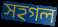
সহগল